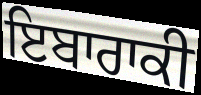
ਇਬਾਰਾਕੀ